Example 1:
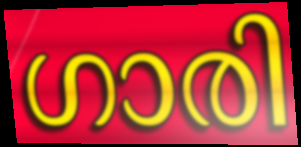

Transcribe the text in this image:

ഗാരി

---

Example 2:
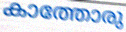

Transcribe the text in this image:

കാത്തോരു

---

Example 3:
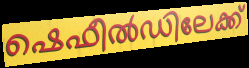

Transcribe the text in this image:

ഷെഫീൽഡിലേക്ക്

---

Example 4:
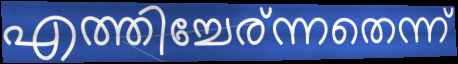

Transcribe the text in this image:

എത്തിച്ചേര്ന്നതെന്ന്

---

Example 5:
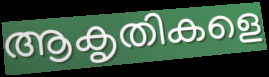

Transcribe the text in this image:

ആകൃതികളെ